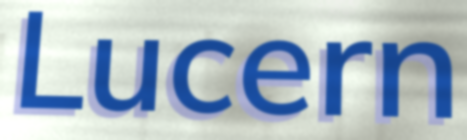
Lucern